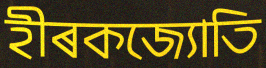
হীৰকজ্যোতি